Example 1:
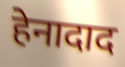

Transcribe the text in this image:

हेनादाद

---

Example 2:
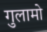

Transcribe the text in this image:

गुलामो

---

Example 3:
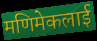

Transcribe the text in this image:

मणिमेकलाई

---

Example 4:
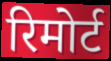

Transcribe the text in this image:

रिमोर्ट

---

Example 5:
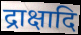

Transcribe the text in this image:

द्राक्षादि